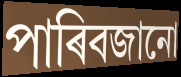
পাৰিবজানো